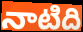
నాటిది